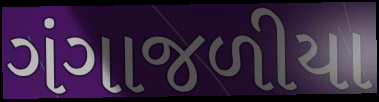
ગંગાજળીયા